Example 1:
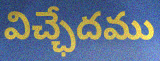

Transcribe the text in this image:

విచ్ఛేదము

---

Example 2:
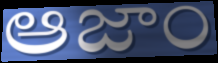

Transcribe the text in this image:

ఆజాం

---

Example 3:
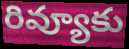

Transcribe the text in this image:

రివ్యూకు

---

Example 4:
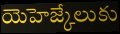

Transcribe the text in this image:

యెహెజ్కేలుకు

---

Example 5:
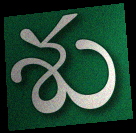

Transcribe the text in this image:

శు